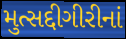
મુત્સદ્દીગીરીનાં